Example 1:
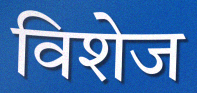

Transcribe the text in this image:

विशेज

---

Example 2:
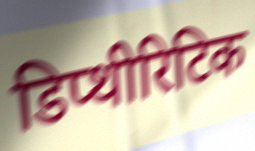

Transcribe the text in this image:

डिप्थीरिटिक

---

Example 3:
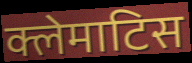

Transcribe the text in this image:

क्लेमाटिस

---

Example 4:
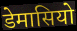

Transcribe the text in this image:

डेमासियो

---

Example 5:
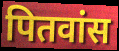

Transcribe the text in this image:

पितवांस